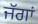
ਜੱਗਾਂ